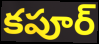
కపూర్